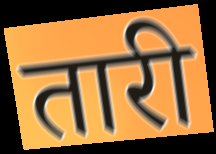
तारी